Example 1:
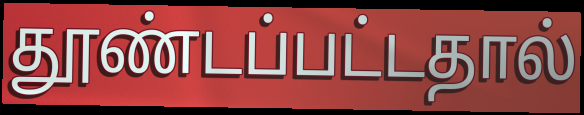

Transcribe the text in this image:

தூண்டப்பட்டதால்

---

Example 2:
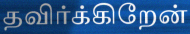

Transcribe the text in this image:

தவிர்க்கிறேன்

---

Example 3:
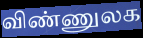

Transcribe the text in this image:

விண்ணுலக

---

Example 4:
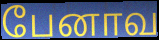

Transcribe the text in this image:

பேனாவ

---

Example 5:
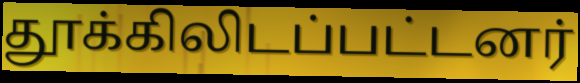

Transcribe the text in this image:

தூக்கிலிடப்பட்டனர்